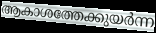
ആകാശത്തേക്കുയർന്ന